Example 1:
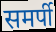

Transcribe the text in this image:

समर्पी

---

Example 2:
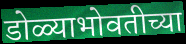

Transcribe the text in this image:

डोळ्याभोवतीच्या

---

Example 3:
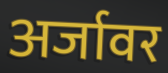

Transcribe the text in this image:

अर्जावर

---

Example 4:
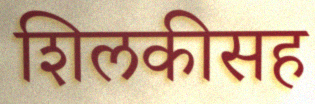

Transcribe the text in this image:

शिलकीसह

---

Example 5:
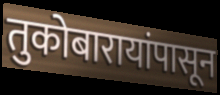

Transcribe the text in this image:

तुकोबारायांपासून